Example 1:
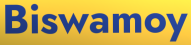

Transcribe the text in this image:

Biswamoy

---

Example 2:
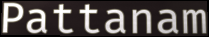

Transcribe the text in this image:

Pattanam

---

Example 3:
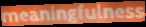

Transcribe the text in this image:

meaningfulness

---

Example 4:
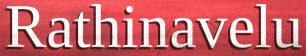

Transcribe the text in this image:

Rathinavelu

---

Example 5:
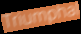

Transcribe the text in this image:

Triumphal